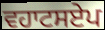
ਵਹਾਟਸਏਪ